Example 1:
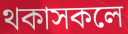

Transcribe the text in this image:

থকাসকলে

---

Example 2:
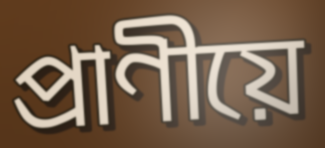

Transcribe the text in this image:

প্ৰাণীয়ে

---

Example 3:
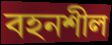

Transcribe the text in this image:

বহনশীল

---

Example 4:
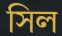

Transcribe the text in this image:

সিল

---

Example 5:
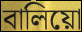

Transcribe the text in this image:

বালিয়ো